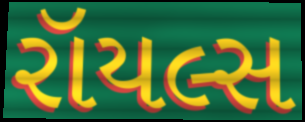
રૉયલ્સ